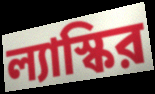
ল্যাস্কির